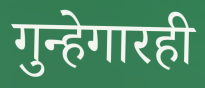
गुन्हेगारही